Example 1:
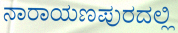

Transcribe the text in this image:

ನಾರಾಯಣಪುರದಲ್ಲಿ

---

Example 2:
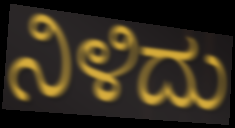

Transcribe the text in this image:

ನಿಳಿದು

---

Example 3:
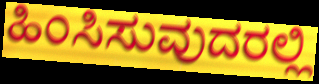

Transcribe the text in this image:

ಹಿಂಸಿಸುವುದರಲ್ಲಿ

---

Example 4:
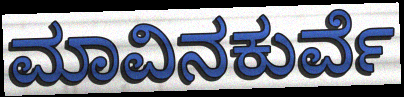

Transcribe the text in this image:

ಮಾವಿನಕುರ್ವೆ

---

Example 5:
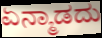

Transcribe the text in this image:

ಏನ್ಮಾಡದು